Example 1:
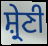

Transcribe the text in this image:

ਸ਼੍ਰੇਣੀ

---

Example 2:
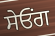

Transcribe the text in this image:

ਸੇਓਂਗ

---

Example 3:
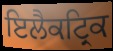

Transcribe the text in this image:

ਇਲੈਕਟ੍ਰਿਕ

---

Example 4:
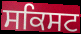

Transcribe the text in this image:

ਸਕਿਸਟ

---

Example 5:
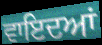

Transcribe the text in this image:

ਵਾਇਦਆਂ